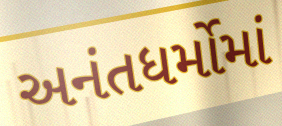
અનંતધર્મોમાં